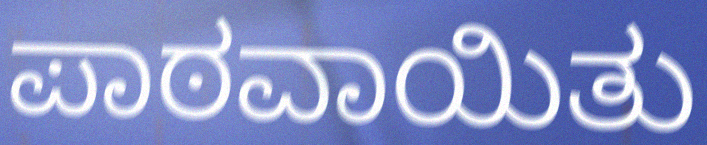
ಪಾಠವಾಯಿತು